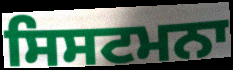
ਸਿਸਟਮਨਾ